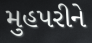
મુહપરીને